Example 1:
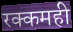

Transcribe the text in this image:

रक्कमही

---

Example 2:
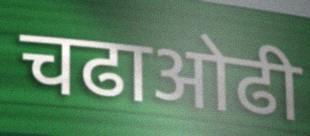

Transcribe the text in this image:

चढाओढी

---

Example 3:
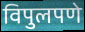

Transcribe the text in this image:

विपुलपणे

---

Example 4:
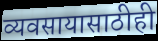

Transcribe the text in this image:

व्यवसायासाठीही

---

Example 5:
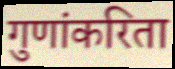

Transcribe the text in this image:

गुणांकरिता